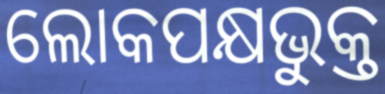
ଲୋକପକ୍ଷଭୁକ୍ତ